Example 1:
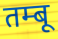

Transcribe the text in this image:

तम्बू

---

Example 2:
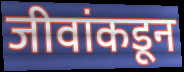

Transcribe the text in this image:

जीवांकडून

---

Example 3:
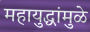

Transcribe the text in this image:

महायुद्धांमुळे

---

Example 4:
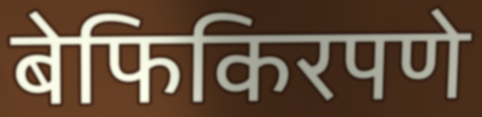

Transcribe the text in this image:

बेफिकिरपणे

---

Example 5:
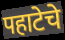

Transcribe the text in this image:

पहाटेचे